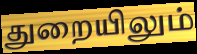
துறையிலும்